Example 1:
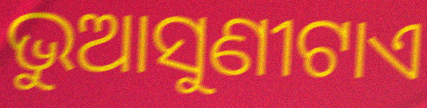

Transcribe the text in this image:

ଭୁଆସୁଣୀଟାଏ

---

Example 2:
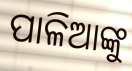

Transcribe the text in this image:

ପାଳିଆଙ୍କୁ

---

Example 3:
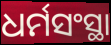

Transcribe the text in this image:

ଧର୍ମସଂସ୍ଥା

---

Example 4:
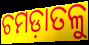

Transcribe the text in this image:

ଚମଡ଼ାତଳୁ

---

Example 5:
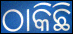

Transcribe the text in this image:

ଠାକିଛି